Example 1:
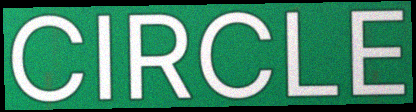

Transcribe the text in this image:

CIRCLE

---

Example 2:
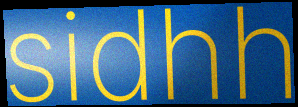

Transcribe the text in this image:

sidhh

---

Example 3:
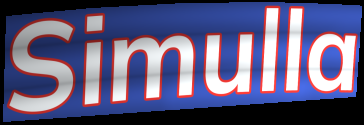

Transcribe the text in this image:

Simulla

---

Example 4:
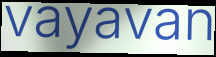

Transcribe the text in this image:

vayavan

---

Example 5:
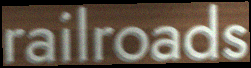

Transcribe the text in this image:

railroads